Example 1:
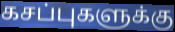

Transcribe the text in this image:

கசப்புகளுக்கு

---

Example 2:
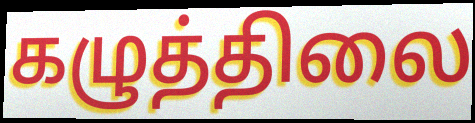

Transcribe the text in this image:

கழுத்திலை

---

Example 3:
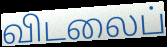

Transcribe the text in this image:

விடலைப்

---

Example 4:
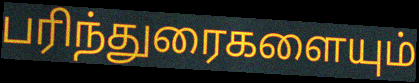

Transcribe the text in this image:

பரிந்துரைகளையும்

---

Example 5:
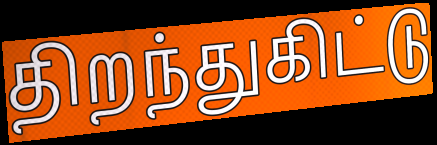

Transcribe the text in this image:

திறந்துகிட்டு